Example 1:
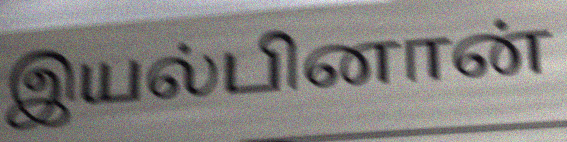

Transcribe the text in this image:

இயல்பினான்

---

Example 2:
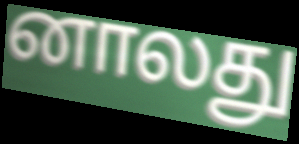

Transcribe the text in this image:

னாலது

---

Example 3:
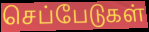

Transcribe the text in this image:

செப்பேடுகள்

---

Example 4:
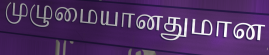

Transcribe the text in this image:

முழுமையானதுமான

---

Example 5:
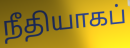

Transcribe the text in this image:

நீதியாகப்